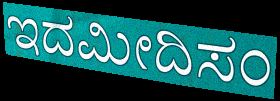
ಇದಮೀದಿಸಂ